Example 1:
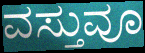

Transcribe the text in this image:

ವಸ್ತುವೂ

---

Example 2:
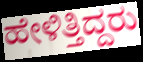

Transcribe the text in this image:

ಹೇಳಿತ್ತಿದ್ದರು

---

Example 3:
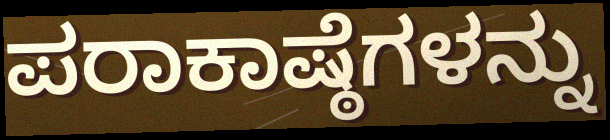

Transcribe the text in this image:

ಪರಾಕಾಷ್ಠೆಗಳನ್ನು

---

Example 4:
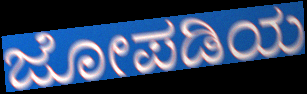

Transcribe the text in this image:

ಜೋಪಡಿಯ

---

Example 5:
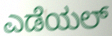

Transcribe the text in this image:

ಎಡೆಯಲ್